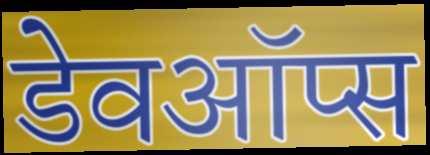
डेवऑप्स